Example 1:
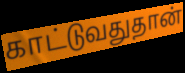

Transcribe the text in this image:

காட்டுவதுதான்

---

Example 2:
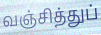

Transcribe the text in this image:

வஞ்சித்துப்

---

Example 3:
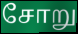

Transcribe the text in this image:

சோறு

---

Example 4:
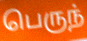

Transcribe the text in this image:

பெருந்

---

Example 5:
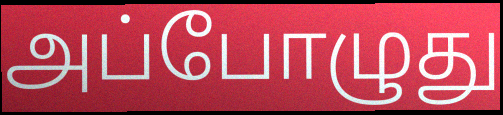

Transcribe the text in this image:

அப்போழுது